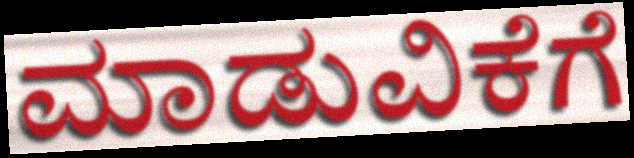
ಮಾಡುವಿಕೆಗೆ